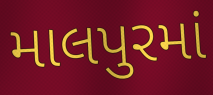
માલપુરમાં